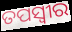
ତପସ୍ଵୀର